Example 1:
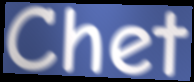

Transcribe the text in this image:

Chet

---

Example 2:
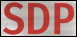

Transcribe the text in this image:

SDP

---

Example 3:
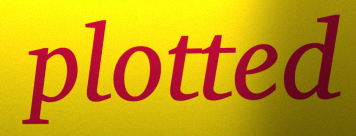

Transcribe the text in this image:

plotted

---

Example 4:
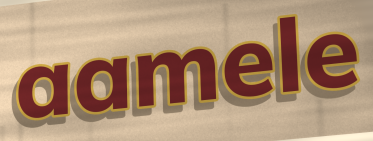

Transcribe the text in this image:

aamele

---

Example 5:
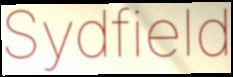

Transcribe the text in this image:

Sydfield